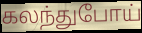
கலந்துபோய்